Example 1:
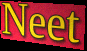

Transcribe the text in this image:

Neet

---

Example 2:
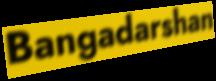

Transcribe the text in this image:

Bangadarshan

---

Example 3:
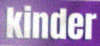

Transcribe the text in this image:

kinder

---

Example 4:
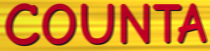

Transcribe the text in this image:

COUNTA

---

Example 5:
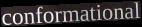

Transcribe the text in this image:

conformational